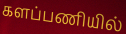
களப்பணியில்